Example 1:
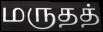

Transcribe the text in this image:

மருதத்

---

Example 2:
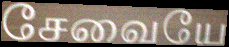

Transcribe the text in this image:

சேவையே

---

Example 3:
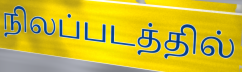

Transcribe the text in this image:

நிலப்படத்தில்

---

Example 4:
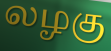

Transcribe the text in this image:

லழகு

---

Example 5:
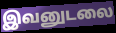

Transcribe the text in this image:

இவனுடலை